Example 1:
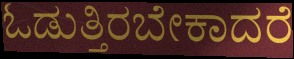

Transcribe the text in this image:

ಓಡುತ್ತಿರಬೇಕಾದರೆ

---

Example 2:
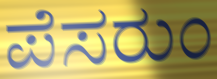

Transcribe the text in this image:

ಪೆಸರುಂ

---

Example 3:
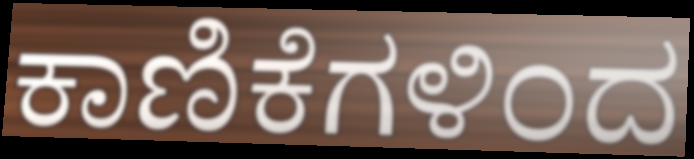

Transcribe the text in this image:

ಕಾಣಿಕೆಗಳಿಂದ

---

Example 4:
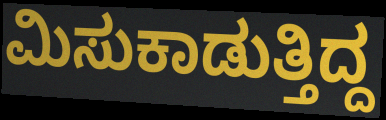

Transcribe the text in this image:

ಮಿಸುಕಾಡುತ್ತಿದ್ದ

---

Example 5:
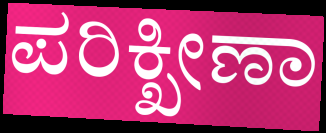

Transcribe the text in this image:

ಪರಿಕ್ಖೀಣಾ